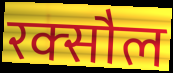
रक्‍सौल